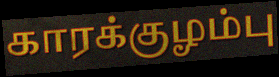
காரக்குழம்பு